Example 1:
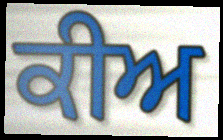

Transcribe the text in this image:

ਕੀਅ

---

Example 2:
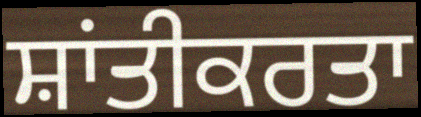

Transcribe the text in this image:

ਸ਼ਾਂਤੀਕਰਤਾ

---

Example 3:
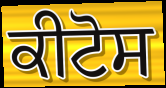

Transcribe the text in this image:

ਕੀਟੋਸ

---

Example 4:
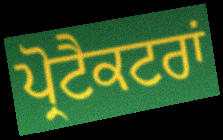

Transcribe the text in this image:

ਪ੍ਰੋਟੈਕਟਰਾਂ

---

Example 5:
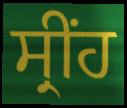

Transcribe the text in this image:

ਸ੍ਰੀਂਹ